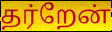
தர்றேன்